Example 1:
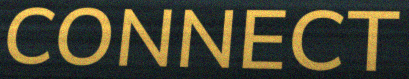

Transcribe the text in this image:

CONNECT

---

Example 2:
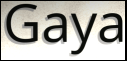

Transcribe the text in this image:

Gaya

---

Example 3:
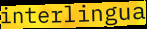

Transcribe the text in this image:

interlingua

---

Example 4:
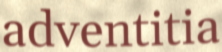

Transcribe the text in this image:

adventitia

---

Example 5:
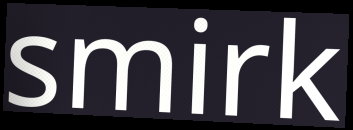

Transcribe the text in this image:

smirk